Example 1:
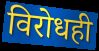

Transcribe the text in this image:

विरोधही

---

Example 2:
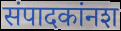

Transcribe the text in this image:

संपादकांनश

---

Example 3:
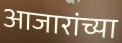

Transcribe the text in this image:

आजारांच्या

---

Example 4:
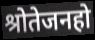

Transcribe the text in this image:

श्रोतेजनहो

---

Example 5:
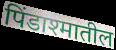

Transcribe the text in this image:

पिंडाश्मातील